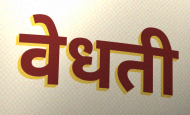
वेधती